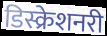
डिस्क्रेशनरी